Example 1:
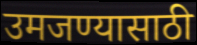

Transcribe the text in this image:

उमजण्यासाठी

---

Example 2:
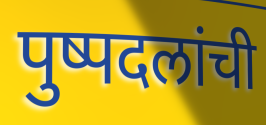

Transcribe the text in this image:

पुष्पदलांची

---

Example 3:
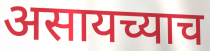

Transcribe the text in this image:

असायच्याच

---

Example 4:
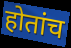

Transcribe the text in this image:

होतांच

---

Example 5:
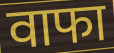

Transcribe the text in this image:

वाफा